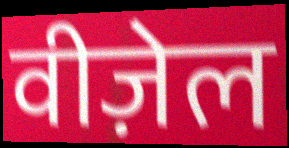
वीज़ेल